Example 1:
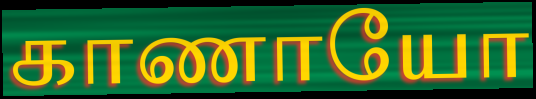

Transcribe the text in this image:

காணாயோ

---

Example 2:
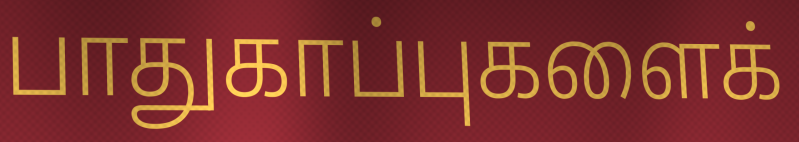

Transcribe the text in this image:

பாதுகாப்புகளைக்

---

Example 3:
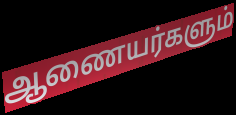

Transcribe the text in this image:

ஆணையர்களும்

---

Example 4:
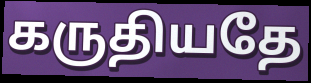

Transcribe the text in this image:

கருதியதே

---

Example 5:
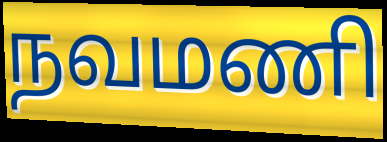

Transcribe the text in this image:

நவமணி